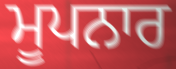
ਮੂਪਨਾਰ